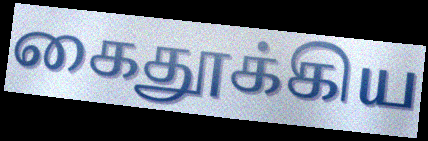
கைதூக்கிய